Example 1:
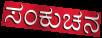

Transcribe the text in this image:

ಸಂಕುಚನ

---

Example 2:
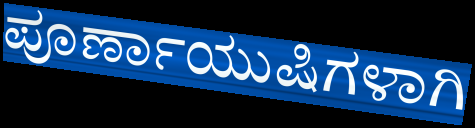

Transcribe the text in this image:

ಪೂರ್ಣಾಯುಷಿಗಳಾಗಿ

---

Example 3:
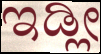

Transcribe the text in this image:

ಇಡ್ಲೀ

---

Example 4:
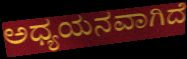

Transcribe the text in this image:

ಅಧ್ಯಯನವಾಗಿದೆ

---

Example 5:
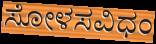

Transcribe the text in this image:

ಸೋಳಸವಿಧಂ